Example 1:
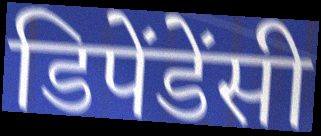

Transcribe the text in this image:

डिपेंडेंसी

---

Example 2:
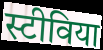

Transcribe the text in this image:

स्‍टीविया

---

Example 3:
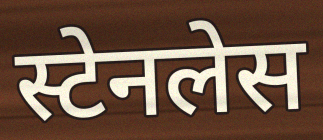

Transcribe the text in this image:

स्टेनलेस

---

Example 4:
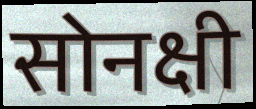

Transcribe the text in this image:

सोनक्षी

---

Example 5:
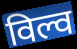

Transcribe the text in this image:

विल्व